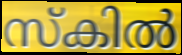
സ്കിൽ